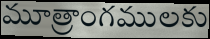
మూత్రాంగములకు